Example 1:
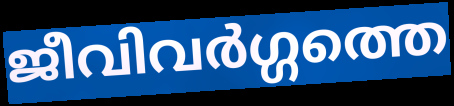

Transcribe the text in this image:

ജീവിവർഗ്ഗത്തെ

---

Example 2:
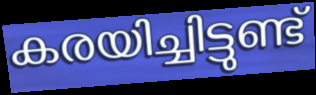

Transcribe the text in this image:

കരയിച്ചിട്ടുണ്ട്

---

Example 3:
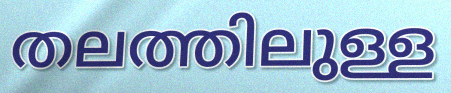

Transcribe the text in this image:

തലത്തിലുള്ള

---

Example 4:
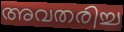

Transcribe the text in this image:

അവതരിച്ച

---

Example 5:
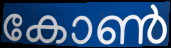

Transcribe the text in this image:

കോൺ